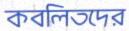
কবলিতদের